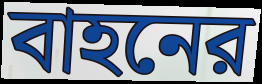
বাহনের